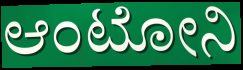
ಆಂಟೋನಿ